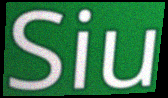
Siu